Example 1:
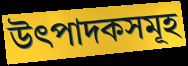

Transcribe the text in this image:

উৎপাদকসমূহ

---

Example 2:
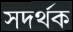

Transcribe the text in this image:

সদৰ্থক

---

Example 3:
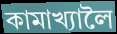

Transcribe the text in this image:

কামাখ্যালৈ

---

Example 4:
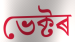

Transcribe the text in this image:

ভেক্টৰ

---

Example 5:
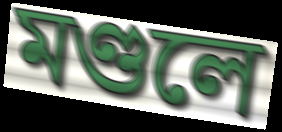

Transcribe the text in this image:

মণ্ডলে